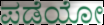
ಪಡೆಯೋ